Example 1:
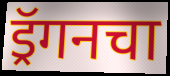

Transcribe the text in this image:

ड्रॅगनचा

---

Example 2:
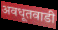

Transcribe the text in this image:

अवधूतवाडी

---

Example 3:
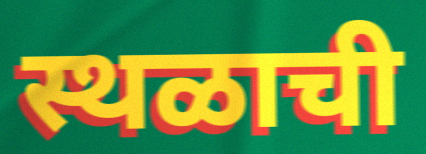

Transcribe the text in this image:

स्थळाची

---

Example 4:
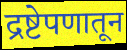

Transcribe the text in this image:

द्रष्टेपणातून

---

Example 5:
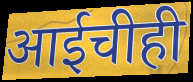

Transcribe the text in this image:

आईचीही